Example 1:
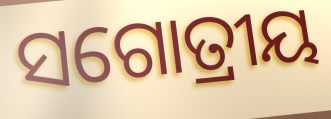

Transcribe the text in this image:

ସଗୋତ୍ରୀୟ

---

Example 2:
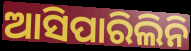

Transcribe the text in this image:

ଆସିପାରିଲିନି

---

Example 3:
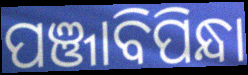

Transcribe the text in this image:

ପଞ୍ଜାବିପିନ୍ଧା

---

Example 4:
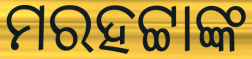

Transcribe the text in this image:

ମରହଟ୍ଟାଙ୍କ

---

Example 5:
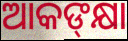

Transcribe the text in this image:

ଆକଙ୍‌କ୍ଷା